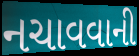
નચાવવાની